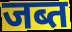
जब्त